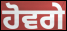
ਹੋਵਗੇ